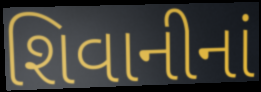
શિવાનીનાં